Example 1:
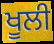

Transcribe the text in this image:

ਖੂਲੀ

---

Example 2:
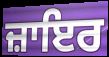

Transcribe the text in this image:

ਜ਼ਾਇਰ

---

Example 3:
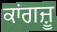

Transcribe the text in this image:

ਕਾਂਗਜ਼ੂ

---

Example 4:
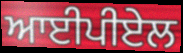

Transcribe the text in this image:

ਆਈਪੀਏਲ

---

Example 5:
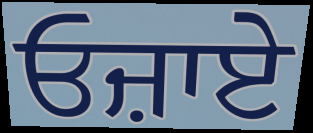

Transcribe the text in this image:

ਓਜ਼ਾਏ